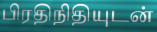
பிரதிநிதியுடன்